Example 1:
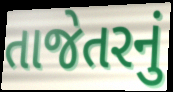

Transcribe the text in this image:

તાજેતરનું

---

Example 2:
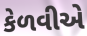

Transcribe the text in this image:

કેળવીએ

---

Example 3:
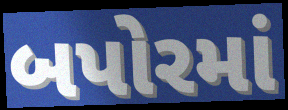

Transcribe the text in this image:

બપોરમાં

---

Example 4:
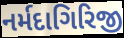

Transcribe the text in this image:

નર્મદાગિરિજી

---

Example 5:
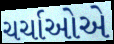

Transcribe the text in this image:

ચર્ચાઓએ